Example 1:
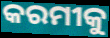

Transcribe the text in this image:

କରମୀକୁ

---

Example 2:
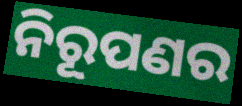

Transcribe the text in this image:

ନିରୂପଣର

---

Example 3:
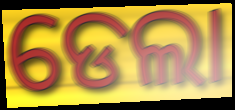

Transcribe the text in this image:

ଡେଲା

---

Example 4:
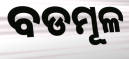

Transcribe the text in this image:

ବଡମୂଳ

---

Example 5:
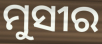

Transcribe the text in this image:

ମୁସୀର